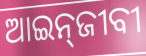
ଆଇନ୍‌ଜୀବୀ